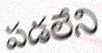
పడలేని